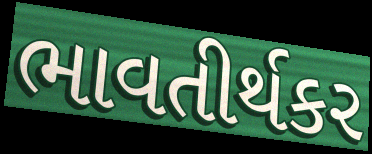
ભાવતીર્થકર